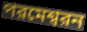
পরমেশ্বরন